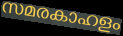
സമരകാഹളം